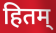
हितम्